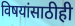
विषयांसाठीही